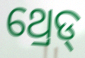
ଥ୍ରେଡ୍